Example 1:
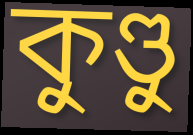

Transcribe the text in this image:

কুণ্ডু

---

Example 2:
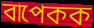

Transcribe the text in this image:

বাপেকক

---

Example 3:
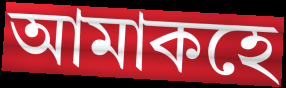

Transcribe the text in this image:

আমাকহে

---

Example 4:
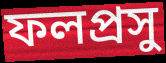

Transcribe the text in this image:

ফলপ্ৰসু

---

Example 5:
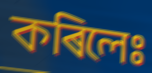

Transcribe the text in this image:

কৰিলেঃ